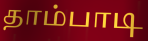
தாம்பாடி